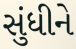
સુંધીને